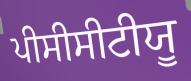
ਪੀਸੀਸੀਟੀਯੂ